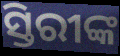
ସ୍ତିରୀଙ୍କ